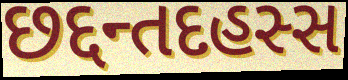
છદ્દન્તદહસ્સ